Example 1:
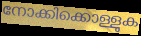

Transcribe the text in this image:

നോക്കിക്കൊള്ളുക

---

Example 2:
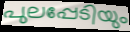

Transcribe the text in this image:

പുലപ്പേടിയും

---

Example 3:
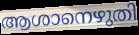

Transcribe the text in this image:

ആശാനെഴുതി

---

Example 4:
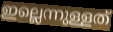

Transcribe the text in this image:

ഇല്ലെന്നുള്ളത്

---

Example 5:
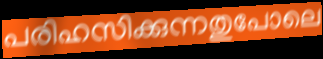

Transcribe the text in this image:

പരിഹസിക്കുന്നതുപോലെ